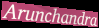
Arunchandra